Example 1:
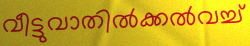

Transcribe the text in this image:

വീട്ടുവാതിൽക്കൽവച്ച്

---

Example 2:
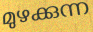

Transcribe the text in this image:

മുഴക്കുന്ന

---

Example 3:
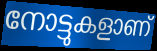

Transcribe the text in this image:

നോട്ടുകളാണ്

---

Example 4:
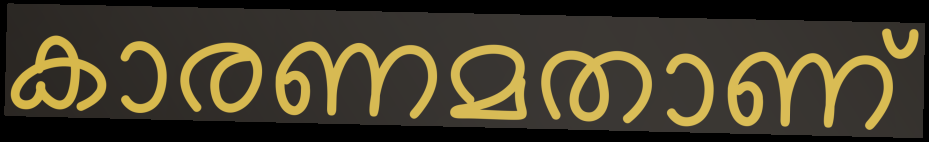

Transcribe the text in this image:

കാരണമതാണ്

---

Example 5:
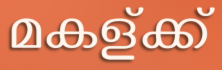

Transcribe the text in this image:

മകള്ക്ക്